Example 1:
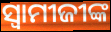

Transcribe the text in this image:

ସ୍ଵାମୀଜୀଙ୍କ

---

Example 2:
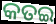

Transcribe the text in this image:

କତଇ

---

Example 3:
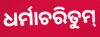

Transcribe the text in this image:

ଧର୍ମାଚରିତୁମ୍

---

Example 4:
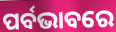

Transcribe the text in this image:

ପର୍ବଭାବରେ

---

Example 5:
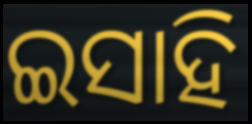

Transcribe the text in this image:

ଇସାହି